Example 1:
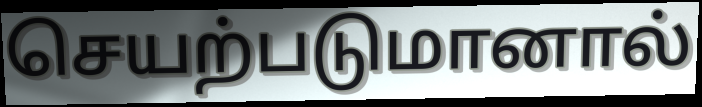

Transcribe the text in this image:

செயற்படுமானால்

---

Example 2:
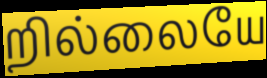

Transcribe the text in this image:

றில்லையே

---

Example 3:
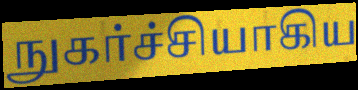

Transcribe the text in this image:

நுகர்ச்சியாகிய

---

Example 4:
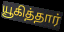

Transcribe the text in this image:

யூகித்தார்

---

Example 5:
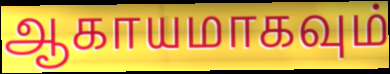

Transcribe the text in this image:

ஆகாயமாகவும்